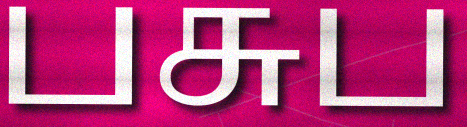
பசுப